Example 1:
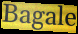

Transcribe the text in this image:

Bagale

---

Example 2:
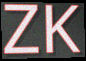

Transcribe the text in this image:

ZK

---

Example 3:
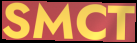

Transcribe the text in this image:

SMCT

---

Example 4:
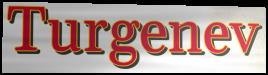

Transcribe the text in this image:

Turgenev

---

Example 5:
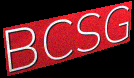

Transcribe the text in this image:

BCSG